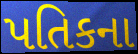
પતિકના